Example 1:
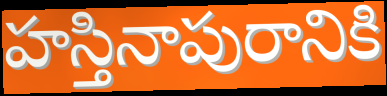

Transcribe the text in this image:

హస్తినాపురానికి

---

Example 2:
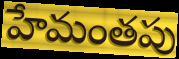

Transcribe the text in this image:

హేమంతపు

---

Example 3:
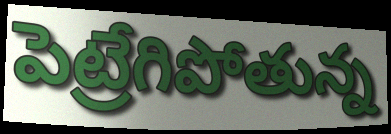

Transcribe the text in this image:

పెట్రేగిపోతున్న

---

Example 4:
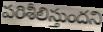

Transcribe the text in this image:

పరిశీలిస్తుందని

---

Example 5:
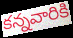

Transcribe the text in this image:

కన్నవారికి